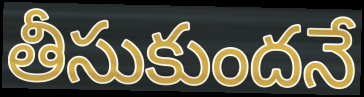
తీసుకుందనే